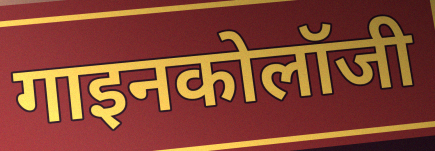
गाइनकोलॉजी